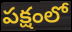
పక్షంలో